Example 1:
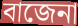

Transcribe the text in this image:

বাজেনা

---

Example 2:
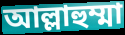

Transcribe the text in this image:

আল্লাহুম্মা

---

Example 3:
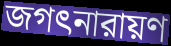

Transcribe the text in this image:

জগৎনারায়ণ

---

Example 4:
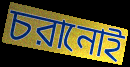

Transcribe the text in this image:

চরানোই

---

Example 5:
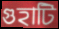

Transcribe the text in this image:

গুহাটি